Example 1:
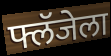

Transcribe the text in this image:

फ्लॅजेला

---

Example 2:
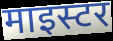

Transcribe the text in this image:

माइस्टर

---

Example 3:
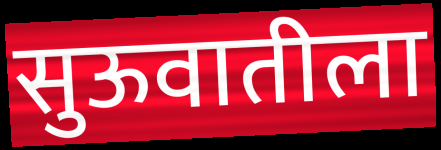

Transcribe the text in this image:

सुऊवातीला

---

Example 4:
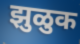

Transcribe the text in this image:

झुळुक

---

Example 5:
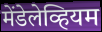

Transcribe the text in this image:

मेंडेलेव्हियम